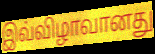
இவ்விழாவானது